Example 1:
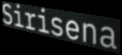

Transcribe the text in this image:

Sirisena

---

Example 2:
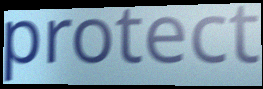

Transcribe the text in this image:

protect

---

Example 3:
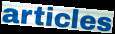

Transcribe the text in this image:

articles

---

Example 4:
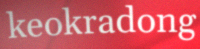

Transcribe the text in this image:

keokradong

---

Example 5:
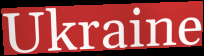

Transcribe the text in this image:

Ukraine